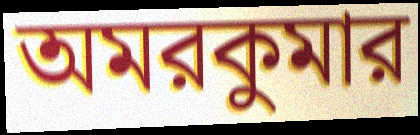
অমরকুমার